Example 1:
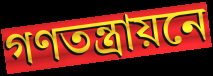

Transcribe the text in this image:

গণতন্ত্রায়নে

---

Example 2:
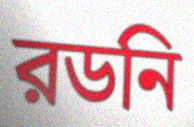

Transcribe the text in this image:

রডনি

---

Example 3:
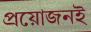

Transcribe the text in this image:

প্রয়োজনই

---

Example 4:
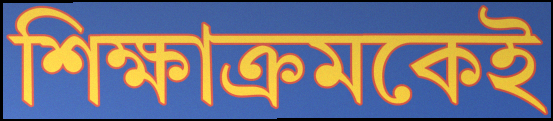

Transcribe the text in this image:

শিক্ষাক্রমকেই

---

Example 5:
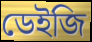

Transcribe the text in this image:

ডেইজি